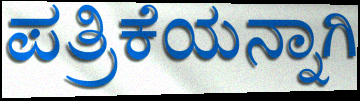
ಪತ್ರಿಕೆಯನ್ನಾಗಿ